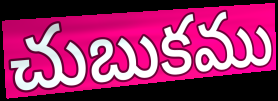
చుబుకము